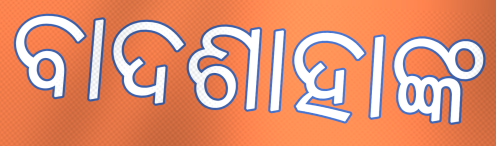
ବାଦଶାହାଙ୍କ